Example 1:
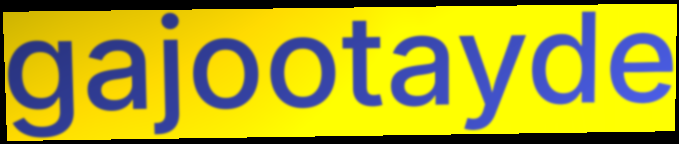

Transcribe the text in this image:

gajootayde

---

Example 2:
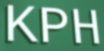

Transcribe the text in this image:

KPH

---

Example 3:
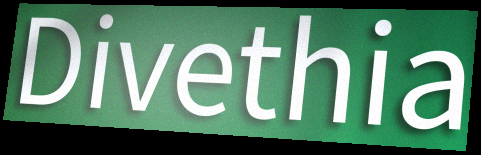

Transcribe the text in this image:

Divethia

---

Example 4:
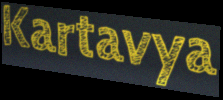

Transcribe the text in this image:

Kartavya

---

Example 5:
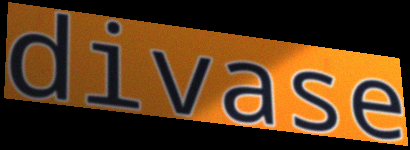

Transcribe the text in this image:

divase